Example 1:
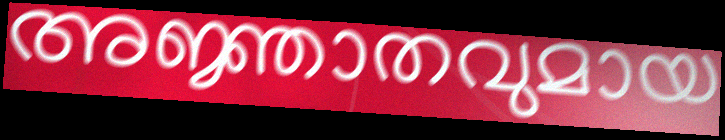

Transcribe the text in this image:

അജ്ഞാതവുമായ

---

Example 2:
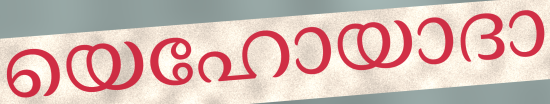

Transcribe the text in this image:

യെഹോയാദാ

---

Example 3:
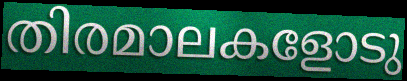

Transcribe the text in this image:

തിരമാലകളോടു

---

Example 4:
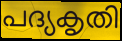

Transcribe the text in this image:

പദ്യകൃതി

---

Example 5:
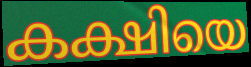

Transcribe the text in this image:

കക്ഷിയെ